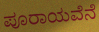
ಪೂರಾಯವೆನೆ